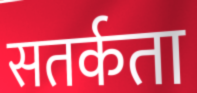
सतर्कता